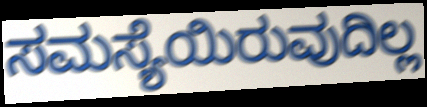
ಸಮಸ್ಯೆಯಿರುವುದಿಲ್ಲ